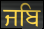
ਜਬਿ